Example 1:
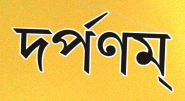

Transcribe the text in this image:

দর্পণম্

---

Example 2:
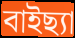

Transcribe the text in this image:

বাইছ্যা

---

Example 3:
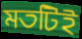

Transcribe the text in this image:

মতটিই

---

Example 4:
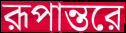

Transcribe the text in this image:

রূপান্তরে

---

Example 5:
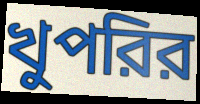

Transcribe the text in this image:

খুপরির